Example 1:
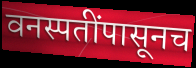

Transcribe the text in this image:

वनस्पतींपासूनच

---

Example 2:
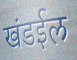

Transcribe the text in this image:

खंडईल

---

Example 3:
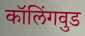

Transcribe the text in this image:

कॉलिंगवुड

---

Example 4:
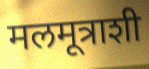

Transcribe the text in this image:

मलमूत्राशी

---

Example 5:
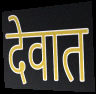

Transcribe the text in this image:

देवात